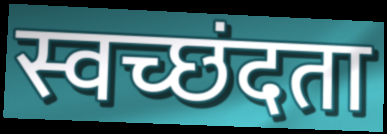
स्वच्छंदता